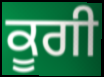
ਕੂਗੀ